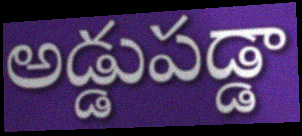
అడ్డుపడ్డా